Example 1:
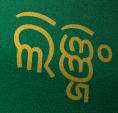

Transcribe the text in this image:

ଲିଞ୍ଜିଂ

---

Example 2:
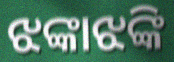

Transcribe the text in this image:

ଝଙ୍କାଝଙ୍କି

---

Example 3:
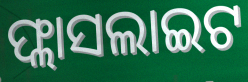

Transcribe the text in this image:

ଫ୍ଲାସଲାଇଟ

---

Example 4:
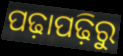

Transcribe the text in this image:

ପଢ଼ାପଢ଼ିରୁ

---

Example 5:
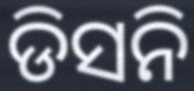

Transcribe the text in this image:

ଡିସନି